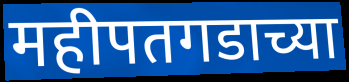
महीपतगडाच्या